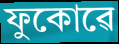
ফুকোৱে